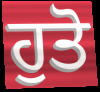
ਹੁਤੋ